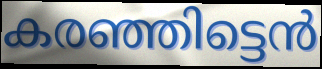
കരഞ്ഞിട്ടെൻ